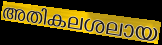
അതികലശലായ